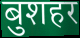
बुशहर